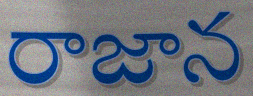
రాజాన